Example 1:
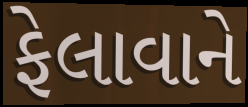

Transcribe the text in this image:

ફેલાવાને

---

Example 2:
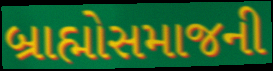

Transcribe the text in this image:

બ્રાહ્મોસમાજની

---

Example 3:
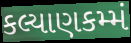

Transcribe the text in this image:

કલ્યાણકમ્મં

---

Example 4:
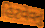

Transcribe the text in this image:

હિટવેવનું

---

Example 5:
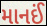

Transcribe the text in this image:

માનઈં